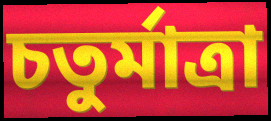
চতুর্মাত্রা